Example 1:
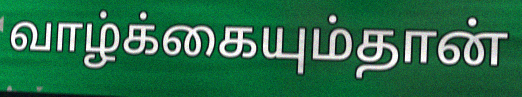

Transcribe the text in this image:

வாழ்க்கையும்தான்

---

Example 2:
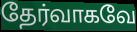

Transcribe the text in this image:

தேர்வாகவே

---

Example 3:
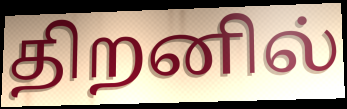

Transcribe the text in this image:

திறனில்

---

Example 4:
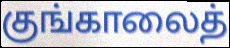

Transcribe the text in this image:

குங்காலைத்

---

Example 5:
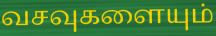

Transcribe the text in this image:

வசவுகளையும்